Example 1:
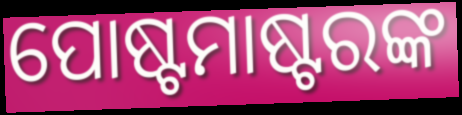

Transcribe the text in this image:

ପୋଷ୍ଟମାଷ୍ଟରଙ୍କ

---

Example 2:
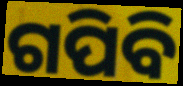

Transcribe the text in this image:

ଗପିବି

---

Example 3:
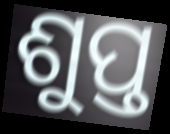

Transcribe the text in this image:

ଶୁପ୍ତ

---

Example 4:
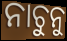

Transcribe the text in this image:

ନାଚୁନୁ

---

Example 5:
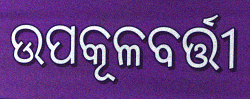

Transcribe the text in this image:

ଉପକୂଳବର୍ତ୍ତୀ